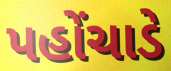
પહોંચાડે